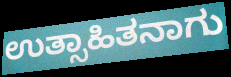
ಉತ್ಸಾಹಿತನಾಗು